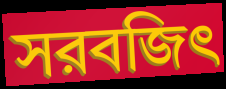
সরবজিৎ